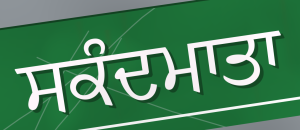
ਸਕੰਦਮਾਤਾ